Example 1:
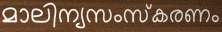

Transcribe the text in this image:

മാലിന്യസംസ്കരണം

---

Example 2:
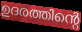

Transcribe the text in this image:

ഉദരത്തിന്റെ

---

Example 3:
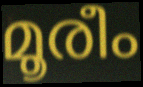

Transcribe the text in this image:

മൂരീം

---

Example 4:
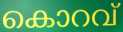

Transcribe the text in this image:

കൊറവ്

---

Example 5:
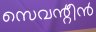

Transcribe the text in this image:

സെവന്റീൻ